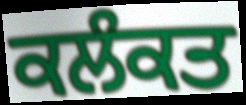
ਕਲੰਕਤ